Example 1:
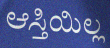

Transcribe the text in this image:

ಆಸ್ತಿಯಿಲ್ಲ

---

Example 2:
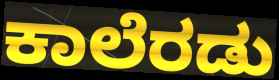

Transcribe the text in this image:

ಕಾಲೆರಡು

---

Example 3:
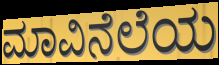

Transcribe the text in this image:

ಮಾವಿನೆಲೆಯ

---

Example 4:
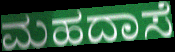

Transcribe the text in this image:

ಮಹದಾಸೆ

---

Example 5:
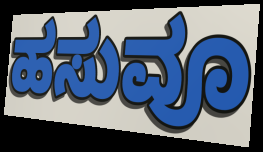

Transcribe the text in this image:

ಹಸುವೂ